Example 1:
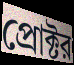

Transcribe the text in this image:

প্রোক্টর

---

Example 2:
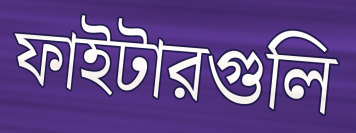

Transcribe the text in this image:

ফাইটারগুলি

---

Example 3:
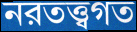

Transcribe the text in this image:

নরতত্ত্বগত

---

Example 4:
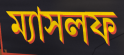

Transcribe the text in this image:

ম্যাসলফ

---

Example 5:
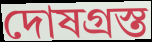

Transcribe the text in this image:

দোষগ্রস্ত